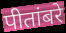
पीतांबरे